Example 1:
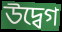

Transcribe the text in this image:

উদ্বেগ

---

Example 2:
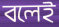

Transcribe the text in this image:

বলেই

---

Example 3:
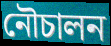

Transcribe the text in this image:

নৌচালন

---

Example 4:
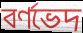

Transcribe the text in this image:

বর্ণভেদ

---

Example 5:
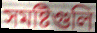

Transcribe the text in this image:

সমষ্টিগুলি